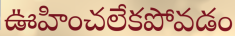
ఊహించలేకపోవడం